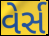
વેર્સ